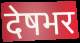
देषभर